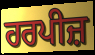
ਹਰਪੀਜ਼